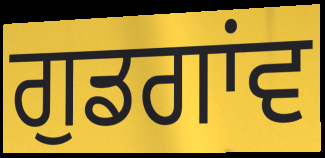
ਗੁਡਗਾਂਵ